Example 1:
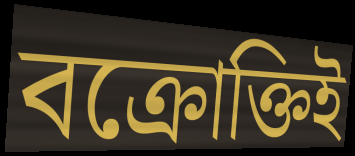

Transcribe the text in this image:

বক্রোক্তিই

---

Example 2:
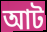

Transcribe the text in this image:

আট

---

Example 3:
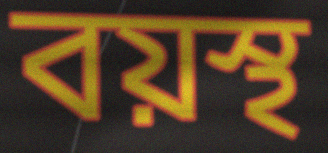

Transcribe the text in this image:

বয়স্থ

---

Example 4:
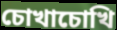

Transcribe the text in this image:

চোখাচোখি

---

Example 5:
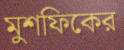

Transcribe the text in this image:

মুশফিকের